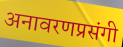
अनावरणप्रसंगी